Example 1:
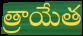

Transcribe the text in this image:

త్రాయేత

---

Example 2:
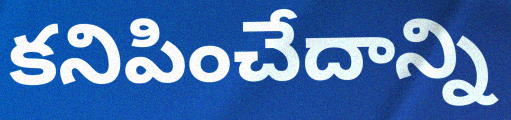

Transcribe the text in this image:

కనిపించేదాన్ని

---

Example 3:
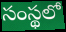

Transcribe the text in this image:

సంస్థలో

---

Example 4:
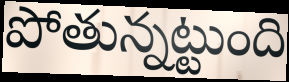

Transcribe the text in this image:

పోతున్నట్టుంది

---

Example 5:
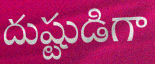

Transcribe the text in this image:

దుష్టుడిగా